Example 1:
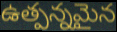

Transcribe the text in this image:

ఉత్పన్నమైన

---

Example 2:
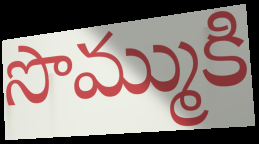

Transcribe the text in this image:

సొమ్ముకి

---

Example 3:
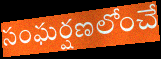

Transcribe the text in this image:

సంఘర్షణలోంచే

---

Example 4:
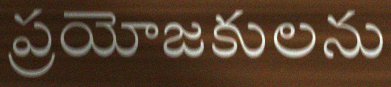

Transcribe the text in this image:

ప్రయోజకులను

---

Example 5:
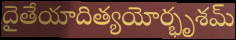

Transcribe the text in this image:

దైతేయాదిత్యయోర్భృశమ్